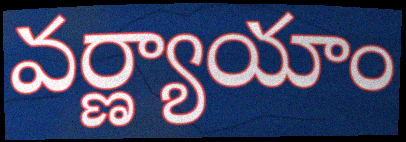
వర్ణ్యాయాం